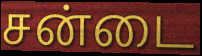
சன்டை